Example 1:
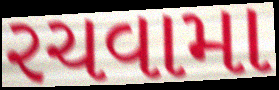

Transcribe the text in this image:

રચવામા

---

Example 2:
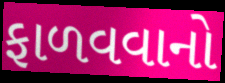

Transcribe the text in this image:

ફાળવવાનો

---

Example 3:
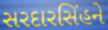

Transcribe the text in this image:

સરદારસિંહને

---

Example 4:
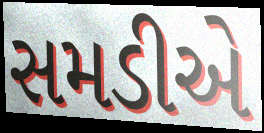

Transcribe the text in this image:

સમડીએ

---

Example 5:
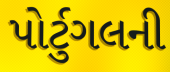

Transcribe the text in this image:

પોર્ટુગલની